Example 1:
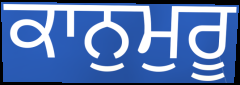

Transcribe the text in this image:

ਕਾਨੁਮੁਰੂ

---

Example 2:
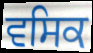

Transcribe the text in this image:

ਵਸਿਕ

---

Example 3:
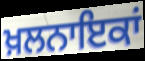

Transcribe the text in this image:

ਖ਼ਲਨਾਇਕਾਂ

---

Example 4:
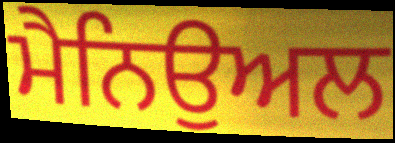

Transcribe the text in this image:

ਮੈਨਿਉਅਲ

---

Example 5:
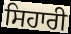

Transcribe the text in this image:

ਸਿਹਾਰੀ